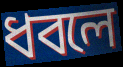
ধবলে